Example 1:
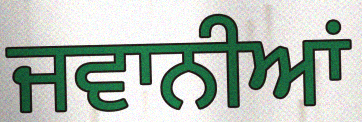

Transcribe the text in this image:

ਜਵਾਨੀਆਂ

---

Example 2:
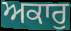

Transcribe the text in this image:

ਅਕਾਰੁ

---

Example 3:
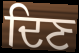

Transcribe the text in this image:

ਦਿਣ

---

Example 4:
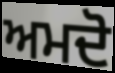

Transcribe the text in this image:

ਅਮਦੋ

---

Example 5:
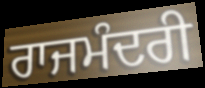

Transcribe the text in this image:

ਰਾਜਮੰਦਰੀ